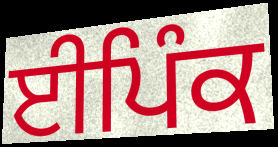
ਈਪਿੰਕ